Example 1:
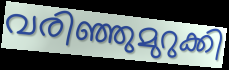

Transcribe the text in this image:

വരിഞ്ഞുമുറുക്കി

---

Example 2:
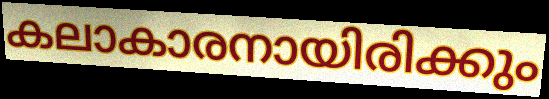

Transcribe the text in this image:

കലാകാരനായിരിക്കും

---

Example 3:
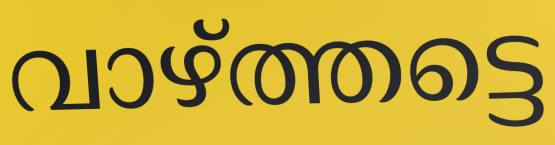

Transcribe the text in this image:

വാഴ്ത്തട്ടെ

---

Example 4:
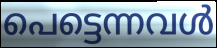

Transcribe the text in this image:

പെട്ടെന്നവൾ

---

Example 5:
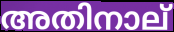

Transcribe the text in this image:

അതിനാല്